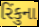
રિંકુના